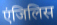
एंजिलिस